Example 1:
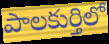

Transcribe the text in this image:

పాలకుర్తిలో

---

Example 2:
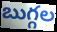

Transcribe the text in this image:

బుగ్గల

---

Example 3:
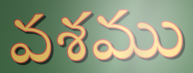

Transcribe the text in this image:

వశము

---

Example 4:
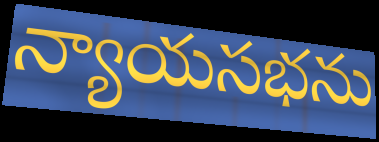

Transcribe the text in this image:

న్యాయసభను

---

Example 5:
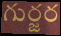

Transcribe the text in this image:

గుర్జర